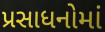
પ્રસાધનોમાં